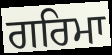
ਗਰਿਮਾ